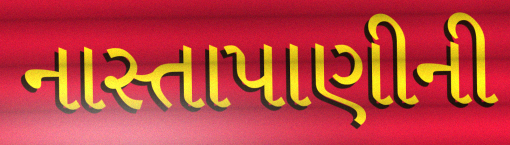
નાસ્તાપાણીની